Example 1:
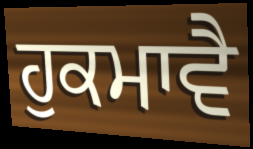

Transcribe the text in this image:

ਹੁਕਮਾਵੈ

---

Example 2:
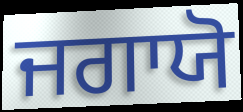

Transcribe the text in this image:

ਜਗਾਯੋ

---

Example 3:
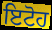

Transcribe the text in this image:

ਇਟੋਹ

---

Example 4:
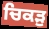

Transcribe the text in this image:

ਚਿਕੜੁ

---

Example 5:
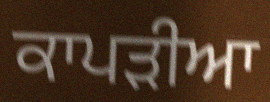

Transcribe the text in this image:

ਕਾਪੜੀਆ